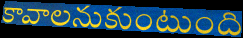
కావాలనుకుంటుంది